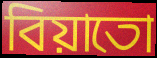
বিয়াতো